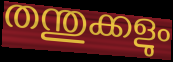
തന്തുക്കളും